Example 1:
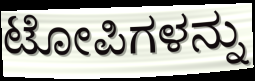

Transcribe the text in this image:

ಟೋಪಿಗಳನ್ನು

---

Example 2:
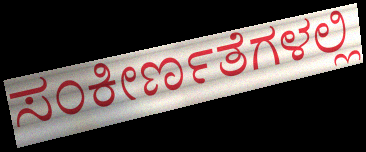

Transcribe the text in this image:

ಸಂಕೀರ್ಣತೆಗಳಲ್ಲಿ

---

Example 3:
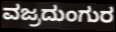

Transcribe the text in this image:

ವಜ್ರದುಂಗುರ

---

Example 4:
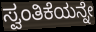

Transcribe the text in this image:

ಸ್ವಂತಿಕೆಯನ್ನೇ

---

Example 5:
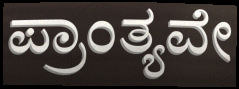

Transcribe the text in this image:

ಪ್ರಾಂತ್ಯವೇ